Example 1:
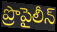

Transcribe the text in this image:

ప్రొపైలీన్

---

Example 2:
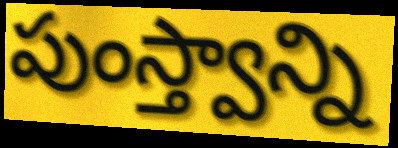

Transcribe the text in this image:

పుంస్త్వాన్ని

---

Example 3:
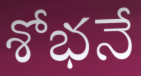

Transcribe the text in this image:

శోభనే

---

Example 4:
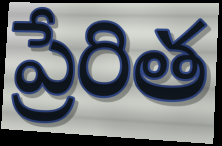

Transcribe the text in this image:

ప్రేరిత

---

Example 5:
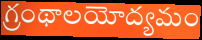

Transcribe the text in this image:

గ్రంథాలయోద్యమం